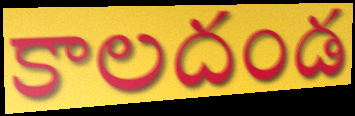
కాలదండ